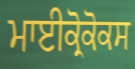
ਮਾਈਕ੍ਰੋਕੋਕਸ